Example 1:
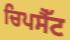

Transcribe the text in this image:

ਚਿਪਸੈੱਟ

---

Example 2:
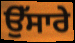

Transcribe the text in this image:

ਉੱਸਾਰੇ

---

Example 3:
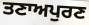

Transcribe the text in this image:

ਤਣਾਅਪੁਰਣ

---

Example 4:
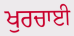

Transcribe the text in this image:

ਖੁਰਚਾਈ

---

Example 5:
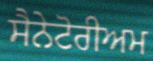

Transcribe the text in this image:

ਸੈਨੇਟੋਰੀਅਮ